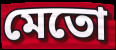
মেতো